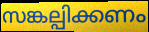
സങ്കല്പിക്കണം